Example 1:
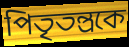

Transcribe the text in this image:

পিতৃতন্ত্রকে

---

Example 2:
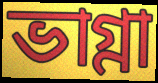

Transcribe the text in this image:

ভাগ্না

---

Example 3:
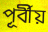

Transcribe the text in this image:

পূর্বীয়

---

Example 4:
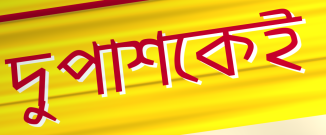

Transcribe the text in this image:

দুপাশকেই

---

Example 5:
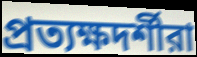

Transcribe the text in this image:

প্রত্যক্ষদর্শীরা